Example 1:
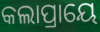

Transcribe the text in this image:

କଲାପ୍ରାୟେ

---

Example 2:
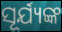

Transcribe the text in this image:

ସୂର୍ଯ୍ୟଙ୍କ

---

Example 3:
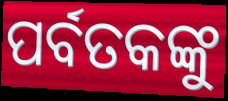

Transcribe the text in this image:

ପର୍ବତକଙ୍କୁ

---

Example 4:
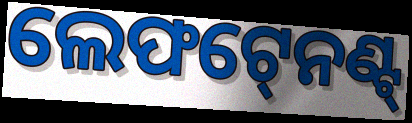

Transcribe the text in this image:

ଲେଫଟ୍‍ନେଣ୍ଟ୍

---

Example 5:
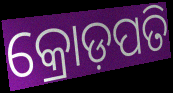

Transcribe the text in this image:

କ୍ରୋଡ଼ପତି